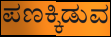
ಪಣಕ್ಕಿಡುವ